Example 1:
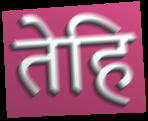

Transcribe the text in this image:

तेहि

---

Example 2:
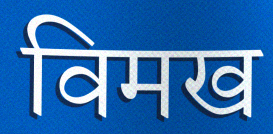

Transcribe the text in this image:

विमख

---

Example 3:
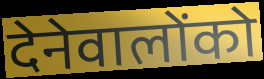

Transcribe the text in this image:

देनेवालोंको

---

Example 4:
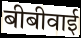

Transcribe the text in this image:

बीबीवाई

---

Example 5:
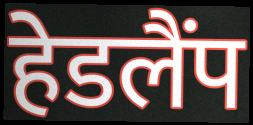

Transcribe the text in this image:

हेडलैंप